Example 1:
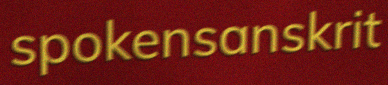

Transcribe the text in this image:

spokensanskrit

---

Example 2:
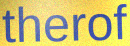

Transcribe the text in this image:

therof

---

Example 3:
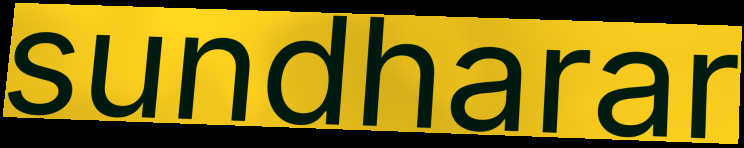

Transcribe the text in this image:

sundharar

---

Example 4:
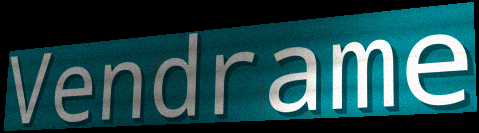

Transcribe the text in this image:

Vendrame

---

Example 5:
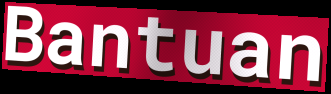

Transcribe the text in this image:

Bantuan